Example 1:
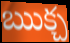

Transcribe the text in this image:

ఋక్చ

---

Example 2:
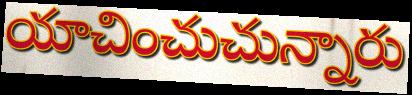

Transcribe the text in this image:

యాచించుచున్నారు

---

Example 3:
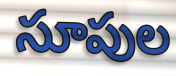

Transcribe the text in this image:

సూపుల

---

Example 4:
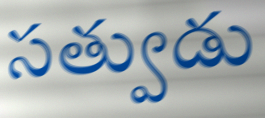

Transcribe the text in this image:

సత్వుడు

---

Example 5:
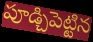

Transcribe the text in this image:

పూడ్చిపెట్టిన